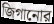
জিগানোর